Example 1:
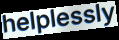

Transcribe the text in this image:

helplessly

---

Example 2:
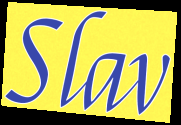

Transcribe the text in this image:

Slav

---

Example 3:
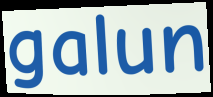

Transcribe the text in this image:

galun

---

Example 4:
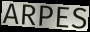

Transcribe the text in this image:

ARPES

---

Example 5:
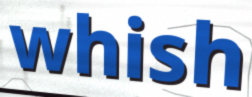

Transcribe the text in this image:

whish